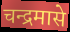
चन्द्रमासे